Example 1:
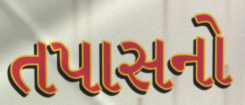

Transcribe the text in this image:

તપાસનો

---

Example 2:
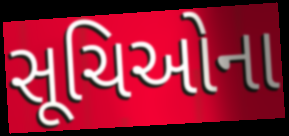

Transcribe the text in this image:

સૂચિઓના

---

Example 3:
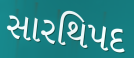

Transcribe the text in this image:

સારથિપદ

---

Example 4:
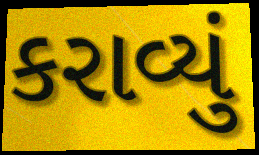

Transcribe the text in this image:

કરાવ્યું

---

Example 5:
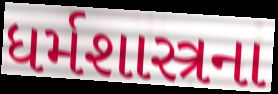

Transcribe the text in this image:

ધર્મશાસ્ત્રના